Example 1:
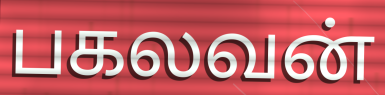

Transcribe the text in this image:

பகலவன்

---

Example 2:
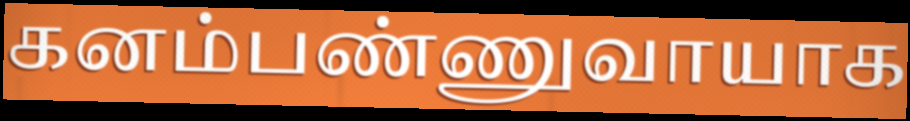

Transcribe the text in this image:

கனம்பண்ணுவாயாக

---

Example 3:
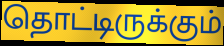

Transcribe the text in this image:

தொட்டிருக்கும்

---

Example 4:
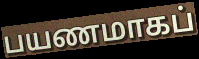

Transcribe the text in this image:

பயணமாகப்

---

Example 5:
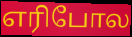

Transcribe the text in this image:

எரிபோல